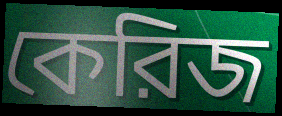
কেরিজ